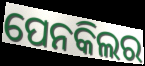
ପେନକିଲର